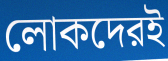
লোকদেরই